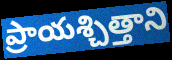
ప్రాయశ్చిత్తాని